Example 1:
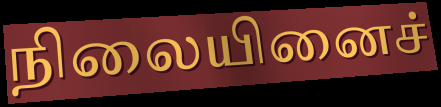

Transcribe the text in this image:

நிலையினைச்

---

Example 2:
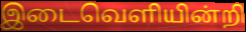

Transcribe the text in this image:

இடைவெளியின்றி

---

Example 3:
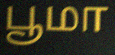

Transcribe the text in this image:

பூமா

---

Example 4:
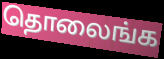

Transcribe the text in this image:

தொலைங்க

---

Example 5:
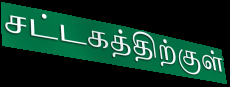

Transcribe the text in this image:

சட்டகத்திற்குள்